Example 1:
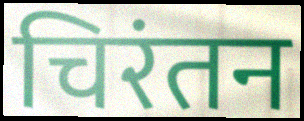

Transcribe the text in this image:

चिरंतन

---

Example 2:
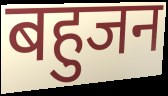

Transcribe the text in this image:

बहुजन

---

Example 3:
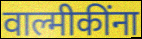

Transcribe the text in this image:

वाल्मीकींना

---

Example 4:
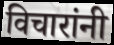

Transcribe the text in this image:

विचारांनी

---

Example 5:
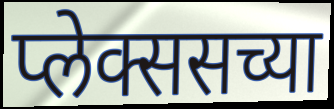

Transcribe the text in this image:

प्लेक्ससच्या